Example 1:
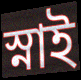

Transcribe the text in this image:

স্নাই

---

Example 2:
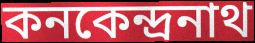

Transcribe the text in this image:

কনকেন্দ্রনাথ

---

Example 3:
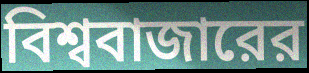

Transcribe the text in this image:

বিশ্ববাজারের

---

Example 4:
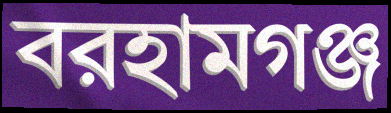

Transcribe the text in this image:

বরহামগঞ্জ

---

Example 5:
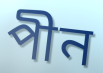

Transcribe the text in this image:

পীন